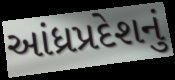
આંધ્રપ્રદેશનું